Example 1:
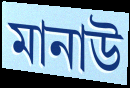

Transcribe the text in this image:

মানাউ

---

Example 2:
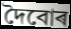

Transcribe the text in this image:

দৈবোৰ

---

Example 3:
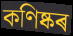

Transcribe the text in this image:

কণিষ্কৰ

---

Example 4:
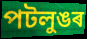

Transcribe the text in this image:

পটলুঙৰ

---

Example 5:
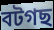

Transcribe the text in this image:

বটগছ